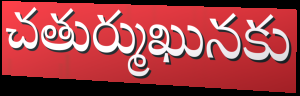
చతుర్ముఖునకు